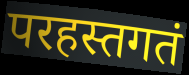
परहस्तगतं